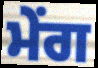
ਮੇਂਗ